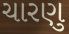
ચારણુ